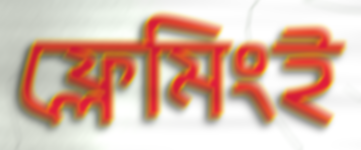
ফ্লেমিংই